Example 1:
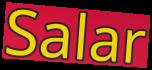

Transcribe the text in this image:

Salar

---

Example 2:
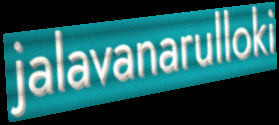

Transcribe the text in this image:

jalavanarulloki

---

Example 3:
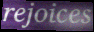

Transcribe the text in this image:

rejoices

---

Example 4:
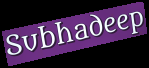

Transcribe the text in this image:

Subhadeep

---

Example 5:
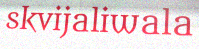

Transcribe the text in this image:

skvijaliwala